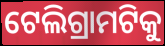
ଟେଲିଗ୍ରାମଟିକୁ